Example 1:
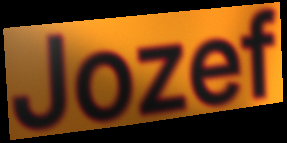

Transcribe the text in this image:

Jozef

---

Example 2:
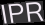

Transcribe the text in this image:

IPR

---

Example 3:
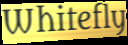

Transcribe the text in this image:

Whitefly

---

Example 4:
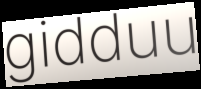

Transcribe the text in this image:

gidduu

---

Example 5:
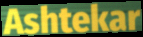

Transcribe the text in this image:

Ashtekar